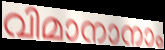
വിമാനാനാം